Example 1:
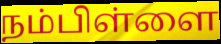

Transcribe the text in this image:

நம்பிள்ளை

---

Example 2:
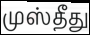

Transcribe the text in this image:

முஸ்தீது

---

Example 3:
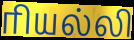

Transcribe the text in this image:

ரியல்லி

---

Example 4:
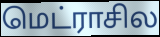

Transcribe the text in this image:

மெட்ராசில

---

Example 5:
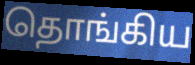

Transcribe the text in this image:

தொங்கிய